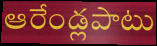
ఆరేండ్లపాటు